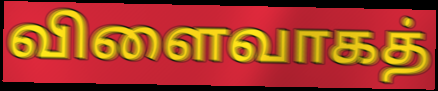
விளைவாகத்